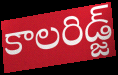
కాలరిడ్జ్